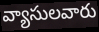
వ్యాసులవారు